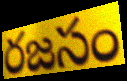
రజసం